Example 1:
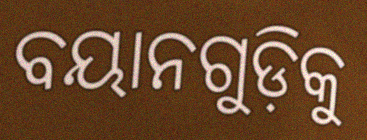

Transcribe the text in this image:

ବୟାନଗୁଡ଼ିକୁ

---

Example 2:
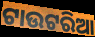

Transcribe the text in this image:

ଟାଉଟରିଆ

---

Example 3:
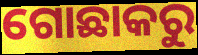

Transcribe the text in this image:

ଗୋଛାକରୁ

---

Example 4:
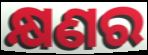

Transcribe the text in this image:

କ୍ଷଣର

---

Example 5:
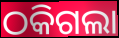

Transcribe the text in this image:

ଠକିଗଲା